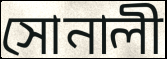
সোনালী